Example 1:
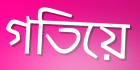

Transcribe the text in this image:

গতিয়ে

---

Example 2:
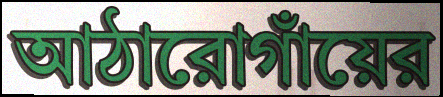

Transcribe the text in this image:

আঠারোগাঁয়ের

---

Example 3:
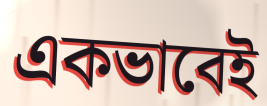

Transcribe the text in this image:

একভাবেই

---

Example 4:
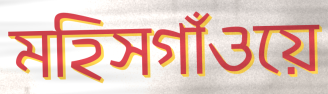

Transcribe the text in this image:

মহিসগাঁওয়ে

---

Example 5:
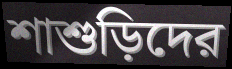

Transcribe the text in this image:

শাশুড়িদের